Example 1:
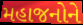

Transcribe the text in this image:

મહાજનોને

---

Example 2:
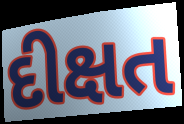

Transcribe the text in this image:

દીક્ષત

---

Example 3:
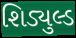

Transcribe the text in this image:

શિડ્યુલ્ડ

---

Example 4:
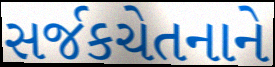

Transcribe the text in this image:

સર્જકચેતનાને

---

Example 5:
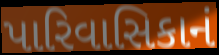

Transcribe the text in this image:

પારિવાસિકાનં